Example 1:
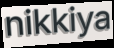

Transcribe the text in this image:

nikkiya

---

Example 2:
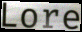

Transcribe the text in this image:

Lore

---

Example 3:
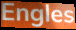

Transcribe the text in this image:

Engles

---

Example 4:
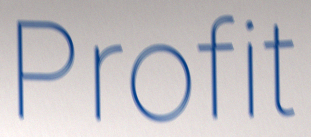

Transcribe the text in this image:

Profit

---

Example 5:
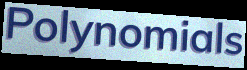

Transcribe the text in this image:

Polynomials